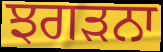
ਝਗੜਨਾ